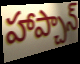
హాప్చాన్